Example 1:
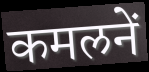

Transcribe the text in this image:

कमलनें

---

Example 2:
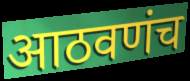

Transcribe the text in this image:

आठवणंच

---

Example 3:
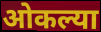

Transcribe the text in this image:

ओकल्या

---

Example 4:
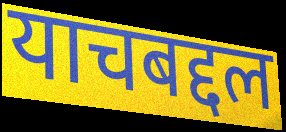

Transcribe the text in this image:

याचबद्दल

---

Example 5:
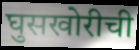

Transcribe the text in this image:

घुसखोरीची